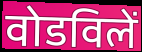
वोडविलें